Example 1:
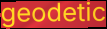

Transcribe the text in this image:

geodetic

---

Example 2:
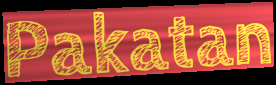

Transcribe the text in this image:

Pakatan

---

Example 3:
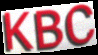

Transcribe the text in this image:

KBC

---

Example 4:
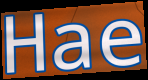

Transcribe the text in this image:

Hae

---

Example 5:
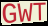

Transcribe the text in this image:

GWT